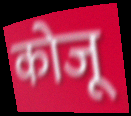
कोजू